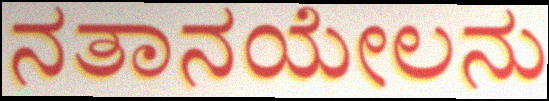
ನತಾನಯೇಲನು